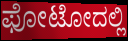
ಫೋಟೋದಲ್ಲಿ